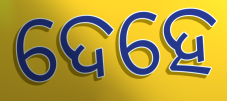
ଦେହେ